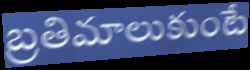
బ్రతిమాలుకుంటే